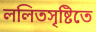
ললিতসৃষ্টিতে